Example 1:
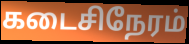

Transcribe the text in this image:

கடைசிநேரம்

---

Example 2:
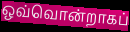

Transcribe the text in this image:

ஒவ்வொன்றாகப்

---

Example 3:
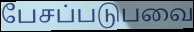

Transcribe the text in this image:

பேசப்படுபவை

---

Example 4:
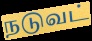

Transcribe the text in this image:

நடுவட்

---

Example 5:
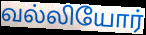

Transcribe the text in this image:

வல்லியோர்